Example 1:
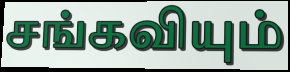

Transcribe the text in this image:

சங்கவியும்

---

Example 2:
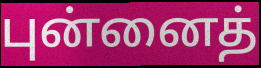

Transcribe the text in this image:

புன்னைத்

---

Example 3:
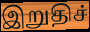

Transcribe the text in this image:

இறுதிச்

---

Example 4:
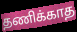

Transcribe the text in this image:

தணிக்காத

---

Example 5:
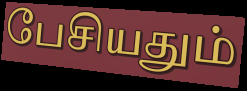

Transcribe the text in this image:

பேசியதும்